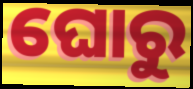
ଘୋରୁ